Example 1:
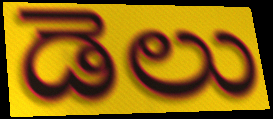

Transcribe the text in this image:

డెలు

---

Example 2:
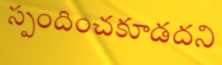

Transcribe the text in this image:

స్పందించకూడదని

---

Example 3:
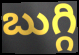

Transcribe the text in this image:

బుగ్గి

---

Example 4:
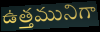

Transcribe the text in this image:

ఉత్తమునిగా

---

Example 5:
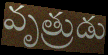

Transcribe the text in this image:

వృత్రుడు